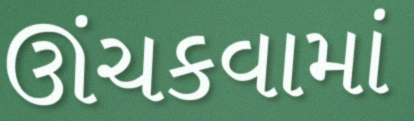
ઊંચકવામાં